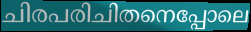
ചിരപരിചിതനെപ്പോലെ